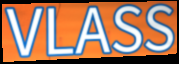
VLASS